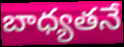
బాధ్యతనే